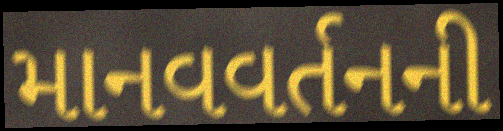
માનવવર્તનની